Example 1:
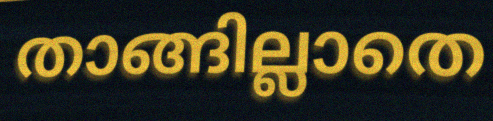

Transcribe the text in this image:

താങ്ങില്ലാതെ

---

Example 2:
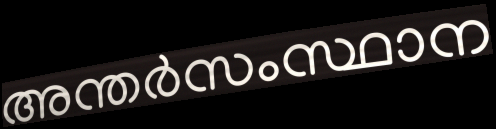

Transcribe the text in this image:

അന്തർസംസ്ഥാന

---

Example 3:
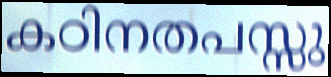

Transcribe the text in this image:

കഠിനതപസ്സു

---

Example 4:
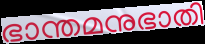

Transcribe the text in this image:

ഭാന്തമനുഭാതി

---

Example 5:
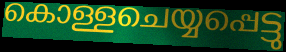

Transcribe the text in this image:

കൊള്ളചെയ്യപ്പെട്ടു